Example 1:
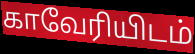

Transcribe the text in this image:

காவேரியிடம்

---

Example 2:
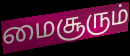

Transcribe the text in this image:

மைசூரும்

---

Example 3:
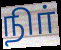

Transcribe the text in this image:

நிர்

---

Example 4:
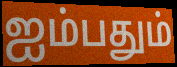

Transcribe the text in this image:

ஐம்பதும்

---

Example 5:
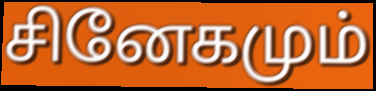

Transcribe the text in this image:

சினேகமும்